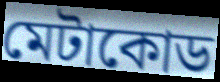
মেটাকোড